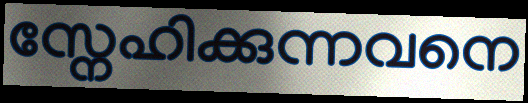
സ്നേഹിക്കുന്നവനെ